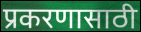
प्रकरणासाठी